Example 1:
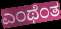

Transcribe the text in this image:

ಎಂಥೆಂತ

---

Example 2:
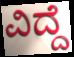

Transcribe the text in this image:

ವಿದ್ದೆ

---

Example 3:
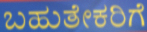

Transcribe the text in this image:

ಬಹುತೇಕರಿಗೆ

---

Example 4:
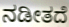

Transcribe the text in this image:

ನಡೀತದೆ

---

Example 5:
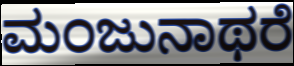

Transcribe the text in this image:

ಮಂಜುನಾಥರೆ